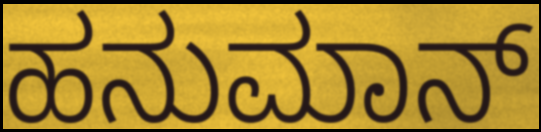
ಹನುಮಾನ್